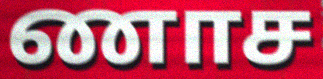
ணாச